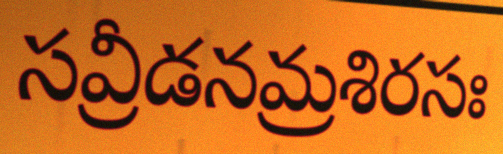
సవ్రీడనమ్రశిరసః